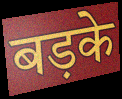
बड़के